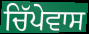
ਚਿੱਪੇਵਾਸ